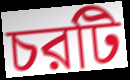
চরটি